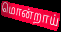
மொன்றாய்